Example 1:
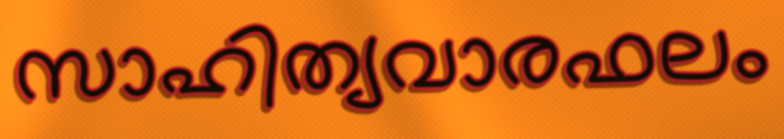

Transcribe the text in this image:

സാഹിത്യവാരഫലം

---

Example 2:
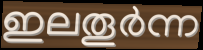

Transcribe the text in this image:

ഇലതൂർന്ന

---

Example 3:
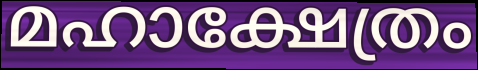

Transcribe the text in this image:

മഹാക്ഷേത്രം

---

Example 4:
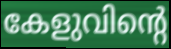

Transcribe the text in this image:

കേളുവിന്റെ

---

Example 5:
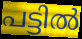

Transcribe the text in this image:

പട്ടിൽ